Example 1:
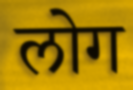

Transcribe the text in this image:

लोग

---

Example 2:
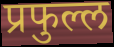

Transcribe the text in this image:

प्रफुल्ल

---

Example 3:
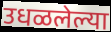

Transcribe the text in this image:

उधळलेल्या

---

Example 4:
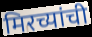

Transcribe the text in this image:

मिरच्यांची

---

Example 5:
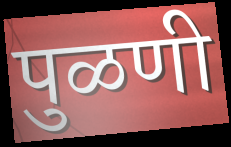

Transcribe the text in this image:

पुळणी